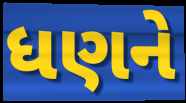
ધણને